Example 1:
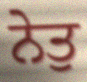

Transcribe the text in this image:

ਨੇਤੁ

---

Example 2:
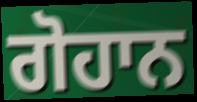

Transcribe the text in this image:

ਗੋਹਾਨ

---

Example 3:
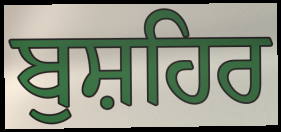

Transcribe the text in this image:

ਬੁਸ਼ਹਿਰ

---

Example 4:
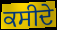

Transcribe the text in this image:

ਕਸੀਦੇ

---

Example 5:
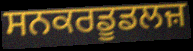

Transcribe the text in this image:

ਸਨਕਰਡੂਡਲਜ਼